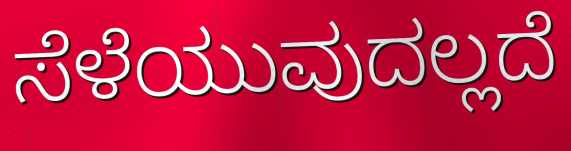
ಸೆಳೆಯುವುದಲ್ಲದೆ